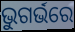
ଭୁଗର୍ଭରେ